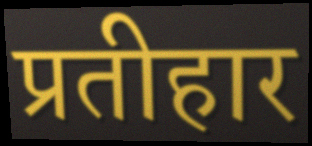
प्रतीहार